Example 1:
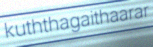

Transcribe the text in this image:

kuththagaithaarar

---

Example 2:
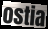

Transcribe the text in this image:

ostia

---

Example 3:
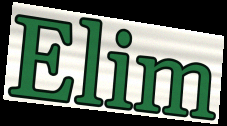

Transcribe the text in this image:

Elim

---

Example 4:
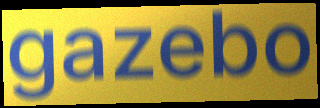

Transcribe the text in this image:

gazebo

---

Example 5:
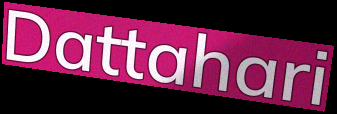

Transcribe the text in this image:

Dattahari